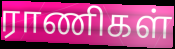
ராணிகள்